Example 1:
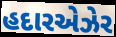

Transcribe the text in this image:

હદારએઝેર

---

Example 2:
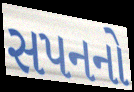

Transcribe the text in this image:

સપનનો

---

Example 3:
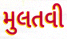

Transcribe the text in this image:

મુલતવી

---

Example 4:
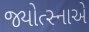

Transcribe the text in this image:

જ્યોત્સ્નાએ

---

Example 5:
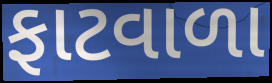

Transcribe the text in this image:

ફાટવાળા